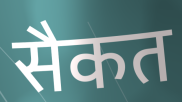
सैकत